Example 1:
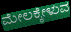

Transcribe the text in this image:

ಮೇಲಕ್ಕೇಳುವ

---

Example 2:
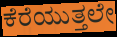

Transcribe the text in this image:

ಕೆರೆಯುತ್ತಲೇ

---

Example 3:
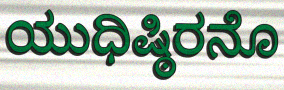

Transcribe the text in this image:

ಯುಧಿಷ್ಠಿರನೊ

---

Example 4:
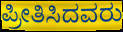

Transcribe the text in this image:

ಪ್ರೀತಿಸಿದವರು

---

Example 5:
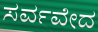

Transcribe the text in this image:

ಸರ್ವವೇದ